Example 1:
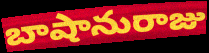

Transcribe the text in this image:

బాషానురాజు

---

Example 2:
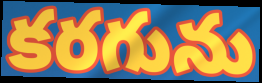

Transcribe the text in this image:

కరగును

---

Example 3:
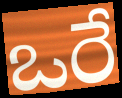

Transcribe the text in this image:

ఒరే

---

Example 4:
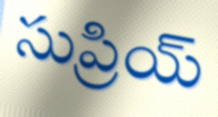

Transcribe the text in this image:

సుప్రియ్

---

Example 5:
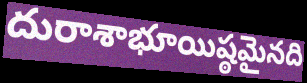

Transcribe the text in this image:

దురాశాభూయిష్ఠమైనది